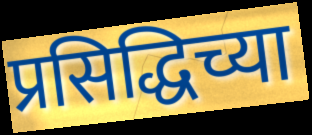
प्रसिद्धिच्या